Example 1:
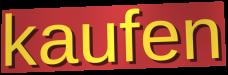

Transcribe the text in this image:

kaufen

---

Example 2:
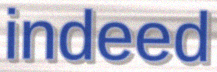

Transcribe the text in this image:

indeed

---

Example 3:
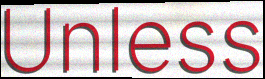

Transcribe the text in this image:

Unless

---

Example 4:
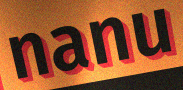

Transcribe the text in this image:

nanu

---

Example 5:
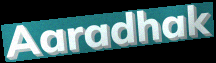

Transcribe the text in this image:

Aaradhak